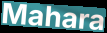
Mahara